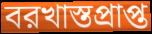
বরখাস্তপ্রাপ্ত